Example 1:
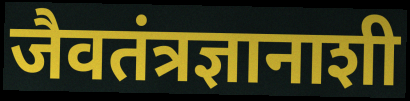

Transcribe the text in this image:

जैवतंत्रज्ञानाशी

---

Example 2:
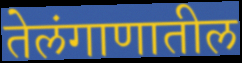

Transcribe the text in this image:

तेलंगाणातील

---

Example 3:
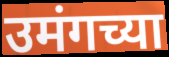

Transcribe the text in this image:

उमंगच्या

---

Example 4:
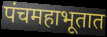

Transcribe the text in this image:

पंचमहाभूतात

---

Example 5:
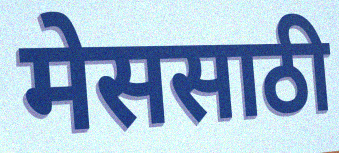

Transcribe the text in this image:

मेससाठी